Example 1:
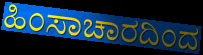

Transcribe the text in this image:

ಹಿಂಸಾಚಾರದಿಂದ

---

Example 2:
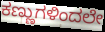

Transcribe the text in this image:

ಕಣ್ಣುಗಳಿಂದಲೇ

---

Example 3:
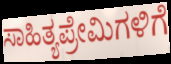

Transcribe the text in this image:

ಸಾಹಿತ್ಯಪ್ರೇಮಿಗಳಿಗೆ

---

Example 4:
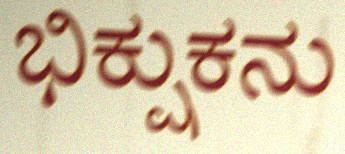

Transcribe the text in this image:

ಭಿಕ್ಷುಕನು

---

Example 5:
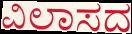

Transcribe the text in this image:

ವಿಲಾಸದ